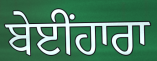
ਬੇਈਂਹਾਰਾ